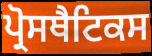
ਪ੍ਰੋਸਥੈਟਿਕਸ